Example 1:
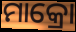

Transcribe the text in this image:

ମାକ୍ରୋ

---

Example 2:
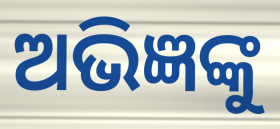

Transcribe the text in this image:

ଅଭିଜ୍ଞଙ୍କୁ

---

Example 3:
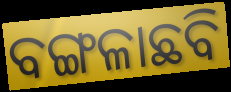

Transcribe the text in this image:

ବଙ୍ଗଳାଛବି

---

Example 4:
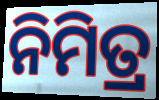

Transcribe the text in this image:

ନିମିତ୍ର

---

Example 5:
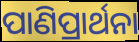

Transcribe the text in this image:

ପାଣିପ୍ରାର୍ଥନା